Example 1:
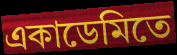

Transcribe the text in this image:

একাডেমিতে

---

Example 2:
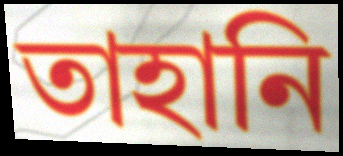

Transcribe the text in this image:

তাহানি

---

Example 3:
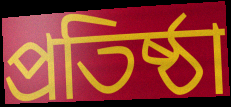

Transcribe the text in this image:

প্ৰতিষ্ঠা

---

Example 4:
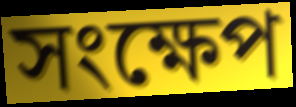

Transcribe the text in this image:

সংক্ষেপ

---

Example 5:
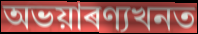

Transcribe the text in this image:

অভয়াৰণ্যখনত